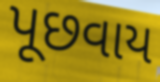
પૂછવાય